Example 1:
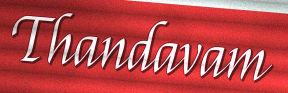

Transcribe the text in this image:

Thandavam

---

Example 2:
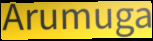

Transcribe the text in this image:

Arumuga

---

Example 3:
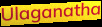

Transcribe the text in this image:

Ulaganatha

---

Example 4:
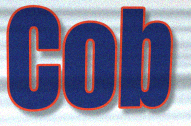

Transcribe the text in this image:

Cob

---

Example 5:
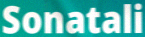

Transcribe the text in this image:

Sonatali